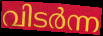
വിടർന്ന